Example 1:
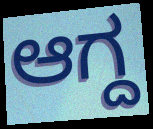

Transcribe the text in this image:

ಆಗ್ದ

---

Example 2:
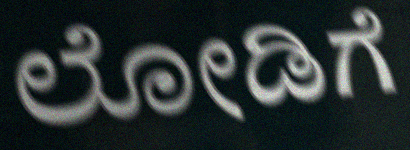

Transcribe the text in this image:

ಲೋಡಿಗೆ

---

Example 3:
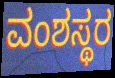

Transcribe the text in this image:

ವಂಶಸ್ಥರ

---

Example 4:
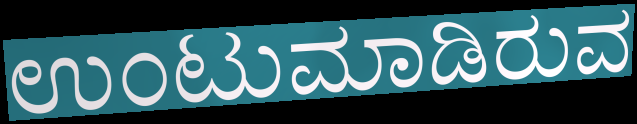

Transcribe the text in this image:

ಉಂಟುಮಾಡಿರುವ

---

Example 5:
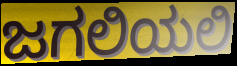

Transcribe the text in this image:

ಜಗಲಿಯಲಿ